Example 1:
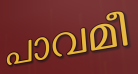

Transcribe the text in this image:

പാവമീ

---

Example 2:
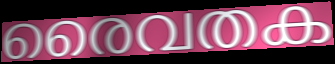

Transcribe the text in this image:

രൈവതക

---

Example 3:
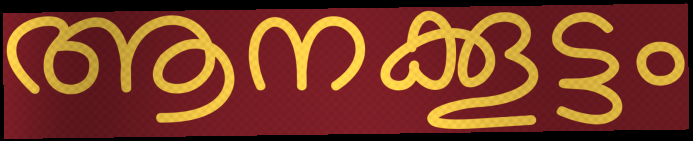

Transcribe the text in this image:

ആനക്കൂട്ടം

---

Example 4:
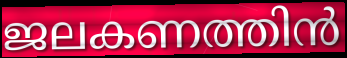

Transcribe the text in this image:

ജലകണത്തിൻ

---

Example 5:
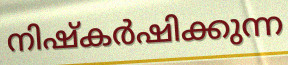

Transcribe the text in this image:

നിഷ്കർഷിക്കുന്ന